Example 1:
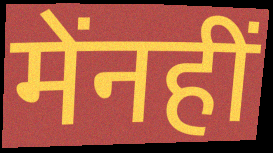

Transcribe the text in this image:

मेंनहीं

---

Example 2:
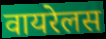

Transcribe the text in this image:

वायरेलस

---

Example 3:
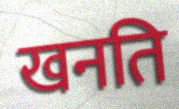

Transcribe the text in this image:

खनति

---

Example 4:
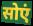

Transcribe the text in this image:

सोएं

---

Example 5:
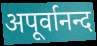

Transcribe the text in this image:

अपूर्वानन्द